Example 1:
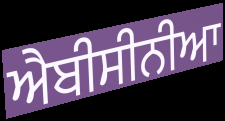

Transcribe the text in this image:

ਐਬੀਸੀਨੀਆ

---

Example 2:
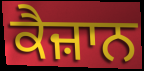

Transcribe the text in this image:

ਕੈਜ਼ਾਨ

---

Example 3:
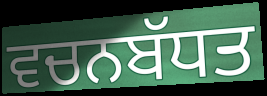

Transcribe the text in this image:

ਵਚਨਬੱਧਤ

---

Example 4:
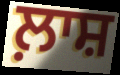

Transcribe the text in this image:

ਲ਼ਾਸ਼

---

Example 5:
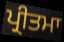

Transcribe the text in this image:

ਪ੍ਰੀਤਮਾ